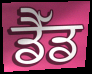
ਡੈੱਡ